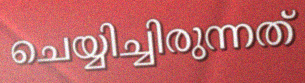
ചെയ്യിച്ചിരുന്നത്